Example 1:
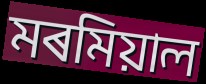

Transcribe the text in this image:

মৰমিয়াল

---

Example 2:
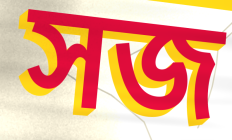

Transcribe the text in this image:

সজ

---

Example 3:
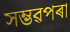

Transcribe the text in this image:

সম্ভৱপৰা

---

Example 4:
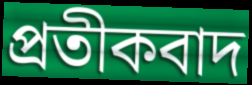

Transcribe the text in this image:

প্ৰতীকবাদ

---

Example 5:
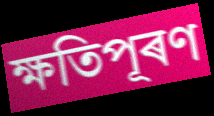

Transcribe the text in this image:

ক্ষতিপূৰণ